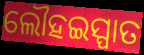
ଲୌହଇସ୍ପାତ